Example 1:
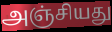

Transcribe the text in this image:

அஞ்சியது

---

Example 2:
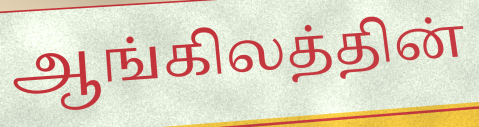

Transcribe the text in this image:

ஆங்கிலத்தின்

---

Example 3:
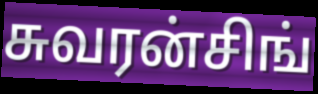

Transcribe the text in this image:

சுவரன்சிங்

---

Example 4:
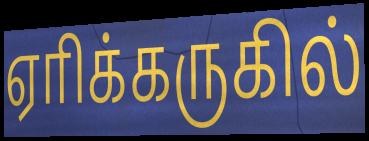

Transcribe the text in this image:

ஏரிக்கருகில்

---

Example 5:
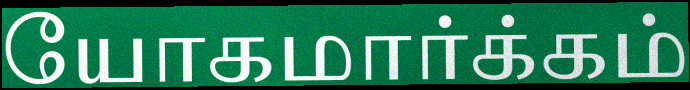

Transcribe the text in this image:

யோகமார்க்கம்